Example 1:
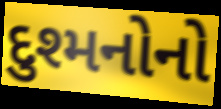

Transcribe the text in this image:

દુશ્મનોનો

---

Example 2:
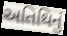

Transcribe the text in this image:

અતિથિનું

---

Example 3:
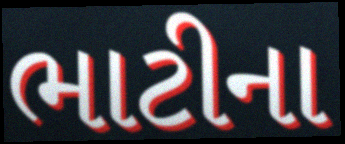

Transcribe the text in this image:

ભાટીના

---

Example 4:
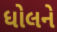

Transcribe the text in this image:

ધોલને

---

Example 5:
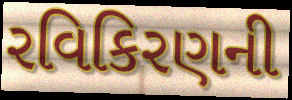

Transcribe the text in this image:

રવિકિરણની